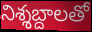
నిశ్శబ్దాలతో